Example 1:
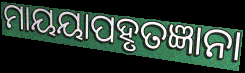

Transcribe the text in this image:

ମାୟୟାପହୃତଜ୍ଞାନା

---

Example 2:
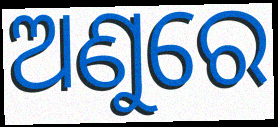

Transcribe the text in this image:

ଅଣୁରେ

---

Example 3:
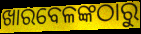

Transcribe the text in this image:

ଖାରବେଳଙ୍କଠାରୁ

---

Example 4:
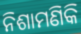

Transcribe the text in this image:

ନିଶାମଣିକି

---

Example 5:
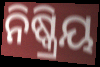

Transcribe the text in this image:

ନିଷ୍କ୍ରିୟ